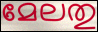
മേലതു